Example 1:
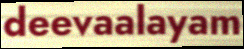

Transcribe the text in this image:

deevaalayam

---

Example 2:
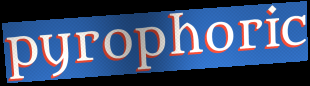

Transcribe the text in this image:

pyrophoric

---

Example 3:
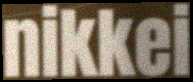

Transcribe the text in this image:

nikkei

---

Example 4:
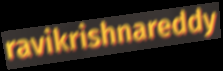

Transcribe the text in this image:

ravikrishnareddy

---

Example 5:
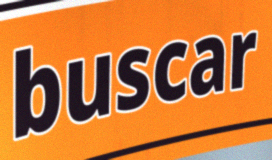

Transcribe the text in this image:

buscar